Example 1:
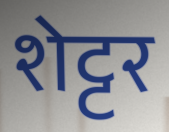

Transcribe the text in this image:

शेट्टर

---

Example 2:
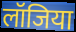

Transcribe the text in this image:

लॉजिया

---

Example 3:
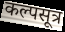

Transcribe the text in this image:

कल्पसूत्र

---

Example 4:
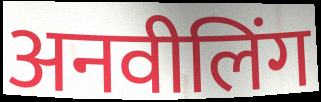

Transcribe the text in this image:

अनवीलिंग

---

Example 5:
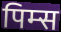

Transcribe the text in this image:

पिम्स